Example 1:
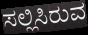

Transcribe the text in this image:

ಸಲ್ಲಿಸಿರುವ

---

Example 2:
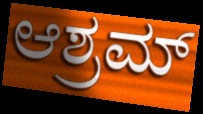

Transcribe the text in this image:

ಆಶ್ರಮ್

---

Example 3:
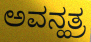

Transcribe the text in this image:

ಅವನ್ಹತ್ರ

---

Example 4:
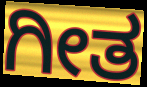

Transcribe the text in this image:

ಗೀತ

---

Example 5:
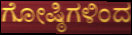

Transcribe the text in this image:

ಗೋಷ್ಠಿಗಳಿಂದ